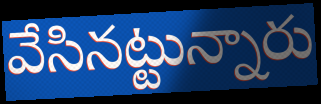
వేసినట్టున్నారు